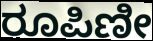
ರೂಪಿಣೀ